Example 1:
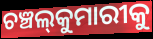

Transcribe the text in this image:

ଚଞ୍ଚଲ୍‍କୁମାରୀକୁ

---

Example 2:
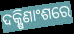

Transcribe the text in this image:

ଦକ୍ଷିଣାଂଶରେ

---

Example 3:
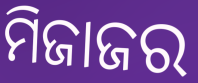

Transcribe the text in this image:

ମିଜାଜର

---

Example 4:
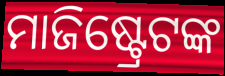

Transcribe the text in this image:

ମାଜିଷ୍ଟ୍ରେଟଙ୍କ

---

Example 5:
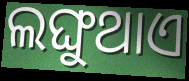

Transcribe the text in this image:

ଲଙ୍ଘୁଥାଏ